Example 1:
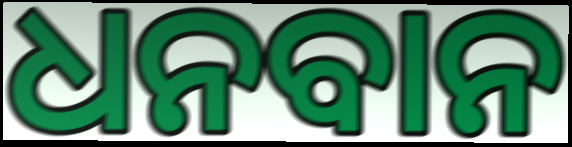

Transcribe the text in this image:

ଧନବାନ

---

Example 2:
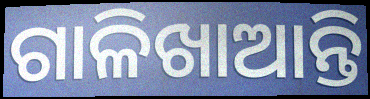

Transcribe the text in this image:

ଗାଳିଖାଆନ୍ତି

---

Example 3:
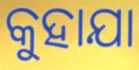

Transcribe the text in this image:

କୁହାଯା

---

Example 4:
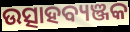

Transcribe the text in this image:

ଉତ୍ସାହବ୍ୟଞ୍ଜକ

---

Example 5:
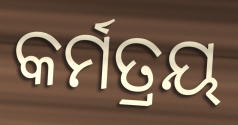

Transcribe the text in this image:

କର୍ମତ୍ରୟ